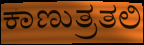
ಕಾಣುತ್ರತಲಿ